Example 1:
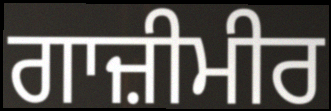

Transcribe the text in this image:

ਗਾਜ਼ੀਮੀਰ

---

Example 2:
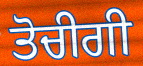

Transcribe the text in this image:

ਤੋਚੀਗੀ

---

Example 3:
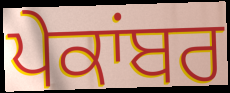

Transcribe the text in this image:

ਪੇਕਾਂਬਰ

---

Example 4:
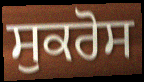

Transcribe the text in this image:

ਸੁਕਰੋਸ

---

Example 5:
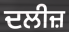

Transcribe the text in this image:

ਦਲੀਜ਼